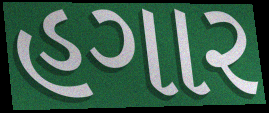
હગાર